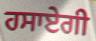
ਹਸਾਏਗੀ